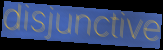
disjunctive